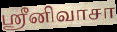
ஸ்ரீனிவாசா